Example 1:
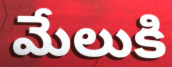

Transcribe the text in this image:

మేలుకి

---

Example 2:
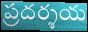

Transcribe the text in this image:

ప్రదర్శయ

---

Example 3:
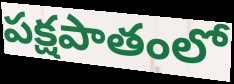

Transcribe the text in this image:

పక్షపాతంలో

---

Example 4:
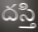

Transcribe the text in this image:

దస్తి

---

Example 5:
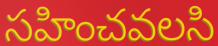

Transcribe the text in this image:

సహించవలసి